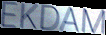
EKDAM